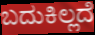
ಬದುಕಿಲ್ಲದೆ